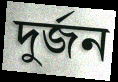
দুর্জন